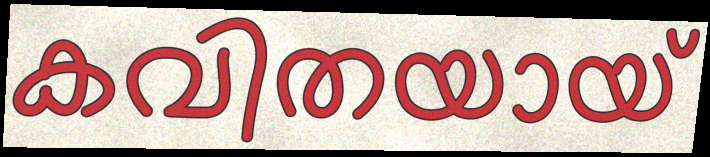
കവിതയായ്